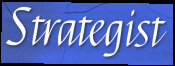
Strategist